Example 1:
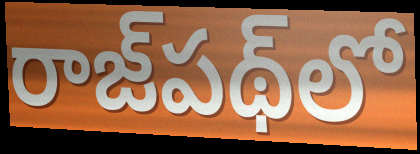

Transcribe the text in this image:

రాజ్‌పథ్‌లో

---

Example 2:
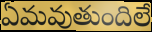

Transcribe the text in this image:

ఏమవుతుందిలే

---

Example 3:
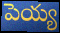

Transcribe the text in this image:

పెయ్య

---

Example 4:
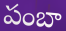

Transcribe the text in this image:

పంబా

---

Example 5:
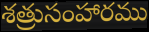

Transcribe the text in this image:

శత్రుసంహారము